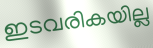
ഇടവരികയില്ല